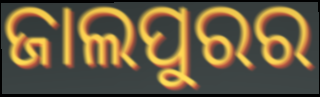
ଜାଲପୁରର